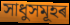
সাধুসমূহৰ